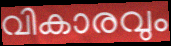
വികാരവും